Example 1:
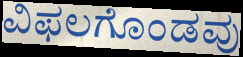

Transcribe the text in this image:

ವಿಫಲಗೊಂಡವು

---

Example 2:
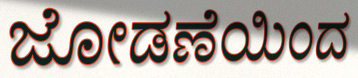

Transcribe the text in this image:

ಜೋಡಣೆಯಿಂದ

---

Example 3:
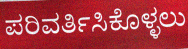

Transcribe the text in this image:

ಪರಿವರ್ತಿಸಿಕೊಳ್ಳಲು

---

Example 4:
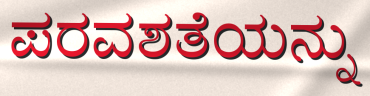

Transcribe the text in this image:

ಪರವಶತೆಯನ್ನು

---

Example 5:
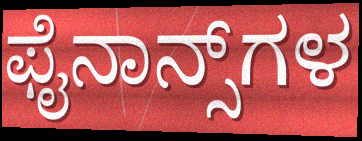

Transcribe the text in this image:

ಫೈನಾನ್ಸ್‌ಗಳ